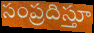
సంప్రదిస్తూ